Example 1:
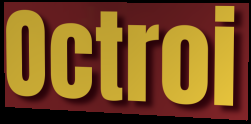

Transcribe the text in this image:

Octroi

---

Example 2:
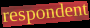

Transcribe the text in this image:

respondent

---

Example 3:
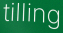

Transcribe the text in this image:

tilling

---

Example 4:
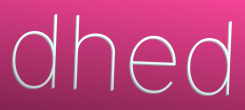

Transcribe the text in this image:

dhed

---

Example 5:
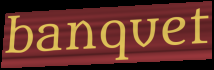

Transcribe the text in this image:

banquet